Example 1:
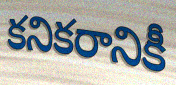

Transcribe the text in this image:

కనికరానికీ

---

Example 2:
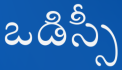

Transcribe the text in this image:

ఒడిస్సీ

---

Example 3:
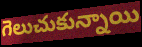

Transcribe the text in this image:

గెలుచుకున్నాయి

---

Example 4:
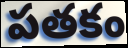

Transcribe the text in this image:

పతకం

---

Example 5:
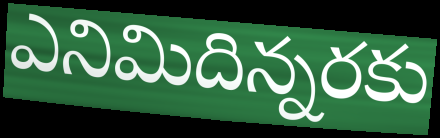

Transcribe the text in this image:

ఎనిమిదిన్నరకు